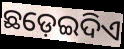
ଛଡ଼େଇଦିଏ